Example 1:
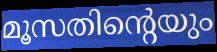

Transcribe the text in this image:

മൂസതിന്റെയും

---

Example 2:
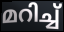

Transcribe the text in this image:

മറിച്ച്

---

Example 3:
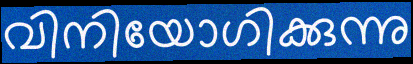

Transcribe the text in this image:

വിനിയോഗിക്കുന്നു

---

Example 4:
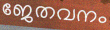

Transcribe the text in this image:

ജേതവനം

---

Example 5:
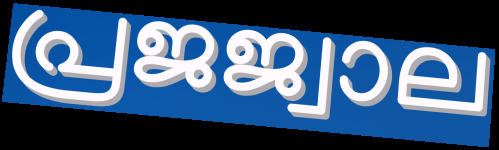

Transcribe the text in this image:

പ്രജജ്വാല